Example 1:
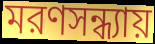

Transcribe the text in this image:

মরণসন্ধ্যায়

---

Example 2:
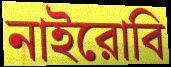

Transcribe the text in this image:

নাইরোবি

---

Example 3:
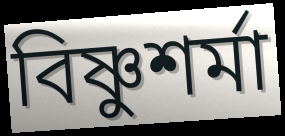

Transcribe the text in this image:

বিষ্ণুশর্মা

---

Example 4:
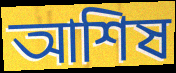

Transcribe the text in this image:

আশিষ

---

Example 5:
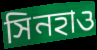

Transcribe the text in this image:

সিনহাও